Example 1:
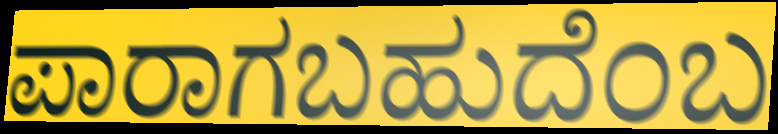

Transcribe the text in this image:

ಪಾರಾಗಬಹುದೆಂಬ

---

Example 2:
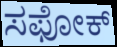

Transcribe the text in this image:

ಸಫೋಕ್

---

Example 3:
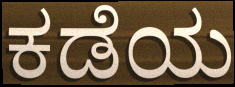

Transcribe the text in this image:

ಕಡೆಯ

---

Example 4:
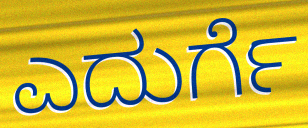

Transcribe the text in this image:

ಎದುರ್ಗೆ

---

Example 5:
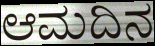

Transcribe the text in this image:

ಆಮದಿನ